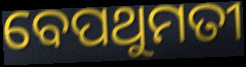
ବେପଥୁମତୀ